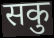
सकु